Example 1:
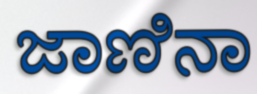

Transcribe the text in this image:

ಜಾಣಿನಾ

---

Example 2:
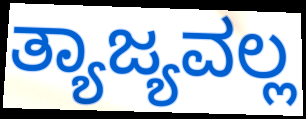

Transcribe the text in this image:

ತ್ಯಾಜ್ಯವಲ್ಲ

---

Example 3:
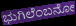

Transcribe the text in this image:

ಭುಗಿಲೆಂಬನೋ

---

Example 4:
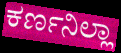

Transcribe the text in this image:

ಕರ್ಣನಿಲ್ಲಾ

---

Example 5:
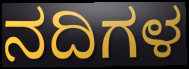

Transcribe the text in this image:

ನದಿಗಳ